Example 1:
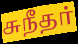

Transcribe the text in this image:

சுநீதர்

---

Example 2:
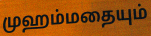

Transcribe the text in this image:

முஹம்மதையும்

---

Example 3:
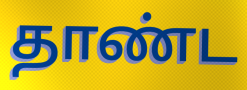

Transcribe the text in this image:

தாண்ட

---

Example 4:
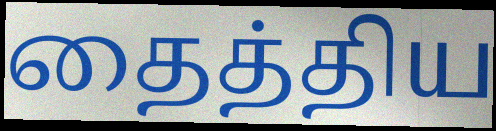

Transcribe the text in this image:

தைத்திய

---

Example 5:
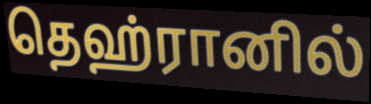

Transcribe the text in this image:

தெஹ்ரானில்